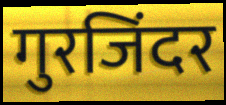
गुरजिंदर